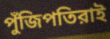
পুঁজিপতিরাই